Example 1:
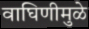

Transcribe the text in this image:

वाघिणीमुळे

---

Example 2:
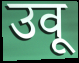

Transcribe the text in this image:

उवू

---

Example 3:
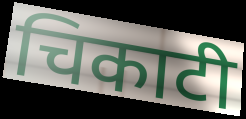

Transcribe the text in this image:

चिकाटी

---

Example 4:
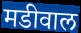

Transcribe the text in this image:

मडीवाल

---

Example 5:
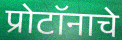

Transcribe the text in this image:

प्रोटॉनाचे